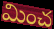
మించ